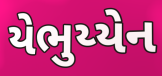
યેભુય્યેન